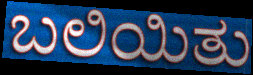
ಬಲಿಯಿತು